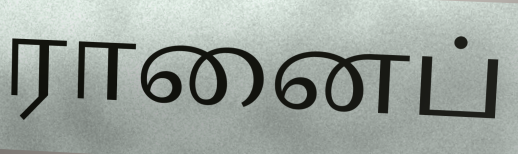
ரானைப்